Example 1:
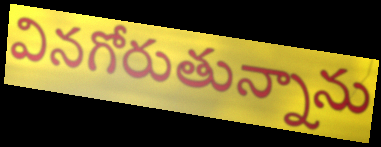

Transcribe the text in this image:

వినగోరుతున్నాను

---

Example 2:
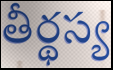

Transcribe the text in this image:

తీర్థస్య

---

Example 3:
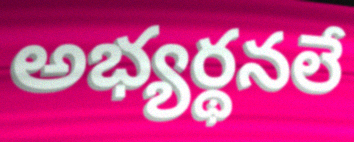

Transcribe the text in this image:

అభ్యర్థనలే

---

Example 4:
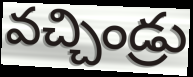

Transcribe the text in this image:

వచ్చిండ్రు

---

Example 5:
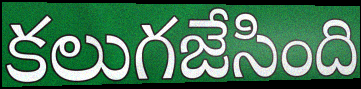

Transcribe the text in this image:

కలుగజేసింది